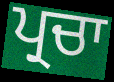
ਪ੍ਰਚਾ